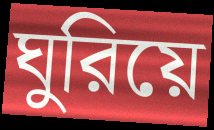
ঘুরিয়ে